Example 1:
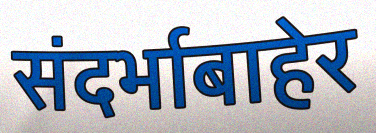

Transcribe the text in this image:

संदर्भाबाहेर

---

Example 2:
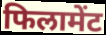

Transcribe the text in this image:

फिलामेंट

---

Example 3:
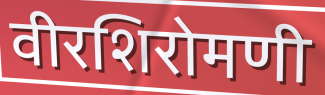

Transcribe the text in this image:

वीरशिरोमणी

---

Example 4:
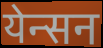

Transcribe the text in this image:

येन्सन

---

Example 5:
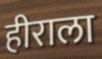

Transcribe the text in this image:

हीराला